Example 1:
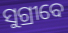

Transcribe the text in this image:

ସୁଗ୍ରୀବେ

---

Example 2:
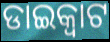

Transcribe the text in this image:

ଡାଇକ୍ଵାଟ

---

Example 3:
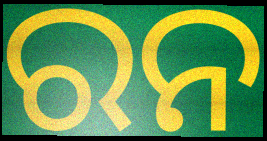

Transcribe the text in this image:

ରନ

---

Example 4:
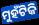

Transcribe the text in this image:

ମୁହଁଟିକି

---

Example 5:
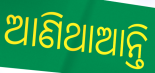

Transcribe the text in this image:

ଆଣିଥାଆନ୍ତି